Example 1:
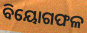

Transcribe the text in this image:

ବିୟୋଗଫଳ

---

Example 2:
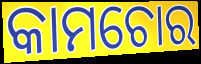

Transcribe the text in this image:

କାମଚୋର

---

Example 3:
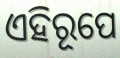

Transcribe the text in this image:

ଏହିରୂପେ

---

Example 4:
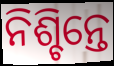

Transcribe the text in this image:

ନିଶ୍ଚିନ୍ତେ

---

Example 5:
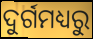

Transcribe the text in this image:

ଦୁର୍ଗମଧ୍ୟରୁ